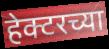
हेक्टरच्या